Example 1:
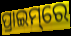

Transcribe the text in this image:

ପ୍ରାଇମ୍‌ରେ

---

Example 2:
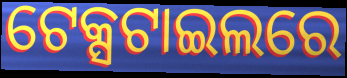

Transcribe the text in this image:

ଟେକ୍ସଟାଇଲରେ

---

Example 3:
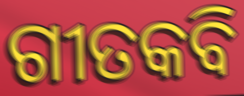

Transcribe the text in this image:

ଗୀତକବି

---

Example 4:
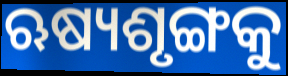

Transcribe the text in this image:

ଋଷ୍ୟଶୃଙ୍ଗକୁ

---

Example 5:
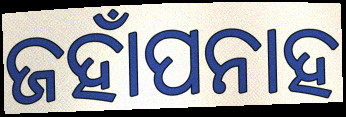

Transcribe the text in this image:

ଜହାଁପନାହ